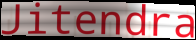
Jitendra